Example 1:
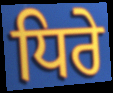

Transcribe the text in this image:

ਧਿਰੇ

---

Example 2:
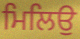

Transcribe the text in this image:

ਮਿਲਿਉ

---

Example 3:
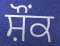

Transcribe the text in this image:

ਸ਼ੌਂਕ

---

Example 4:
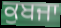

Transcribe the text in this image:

ਕੁਬਜਾ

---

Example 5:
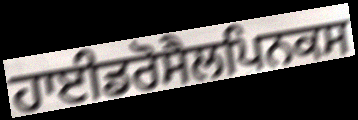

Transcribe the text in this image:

ਹਾਈਡਰੋਸੈਲਪਿਨਕਸ